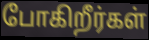
போகிறீர்கள்